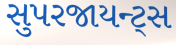
સુપરજાયન્ટ્સ